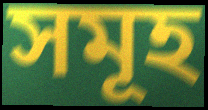
সমূহ